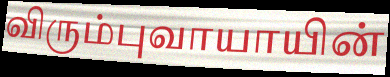
விரும்புவாயாயின்